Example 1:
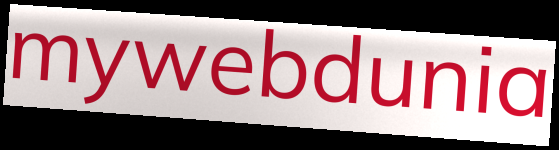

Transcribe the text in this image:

mywebdunia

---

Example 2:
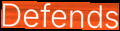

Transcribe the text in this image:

Defends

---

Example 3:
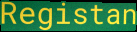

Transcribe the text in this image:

Registan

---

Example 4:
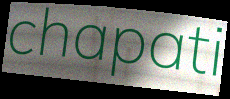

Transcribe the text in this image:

chapati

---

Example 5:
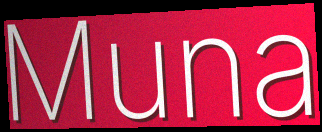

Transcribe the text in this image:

Muna